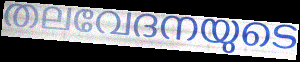
തലവേദനയുടെ